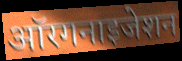
ऑरगनाइजेशन